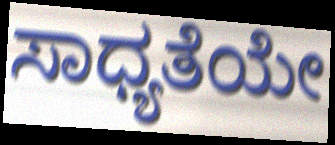
ಸಾಧ್ಯತೆಯೇ